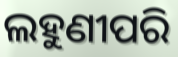
ଲହୁଣୀପରି